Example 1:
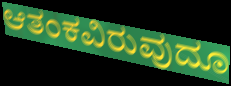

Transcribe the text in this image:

ಆತಂಕವಿರುವುದೂ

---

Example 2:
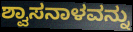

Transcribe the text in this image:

ಶ್ವಾಸನಾಳವನ್ನು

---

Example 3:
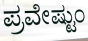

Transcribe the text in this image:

ಪ್ರವೇಷ್ಟುಂ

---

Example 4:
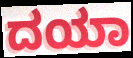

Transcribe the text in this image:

ದಯಾ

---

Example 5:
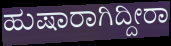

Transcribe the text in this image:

ಹುಷಾರಾಗಿದ್ದೀರಾ